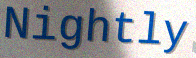
Nightly